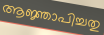
ആജ്ഞാപിച്ചതു